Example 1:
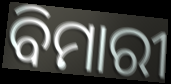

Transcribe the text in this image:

ବିମାରୀ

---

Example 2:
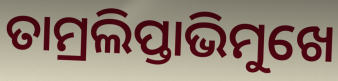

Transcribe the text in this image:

ତାମ୍ରଲିପ୍ତାଭିମୁଖେ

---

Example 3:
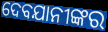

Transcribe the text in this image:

ଦେବଯାନୀଙ୍କର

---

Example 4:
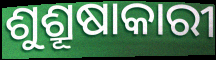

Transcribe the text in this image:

ଶୁଶ୍ରୂଷାକାରୀ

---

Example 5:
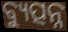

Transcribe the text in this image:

ବ୍ୟୁତ୍ପନ୍ନ